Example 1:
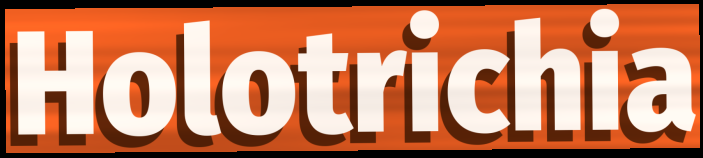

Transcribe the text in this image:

Holotrichia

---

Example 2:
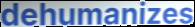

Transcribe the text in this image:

dehumanizes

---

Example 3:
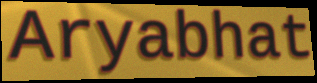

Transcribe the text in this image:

Aryabhat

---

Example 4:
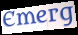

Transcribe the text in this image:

Emerg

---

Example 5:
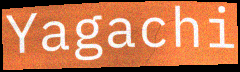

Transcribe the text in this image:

Yagachi